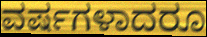
ವರ್ಷಗಳಾದರೂ